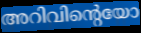
അറിവിന്റെയോ